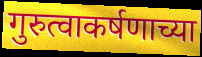
गुरुत्वाकर्षणाच्या